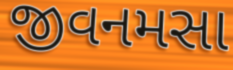
જીવનમસા